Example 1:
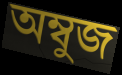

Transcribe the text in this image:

অম্বুজ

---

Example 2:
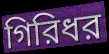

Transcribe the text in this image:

গিরিধর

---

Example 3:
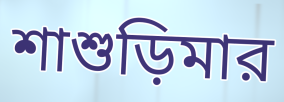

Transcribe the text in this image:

শাশুড়িমার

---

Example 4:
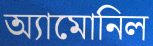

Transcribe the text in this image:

অ্যামোনিল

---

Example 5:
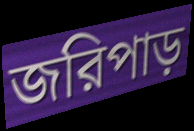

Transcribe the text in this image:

জরিপাড়